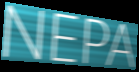
NEPA